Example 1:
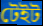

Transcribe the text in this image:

টেইট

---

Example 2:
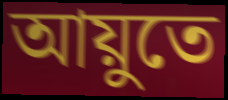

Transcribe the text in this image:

আয়ুতে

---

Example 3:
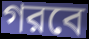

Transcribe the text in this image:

গরবে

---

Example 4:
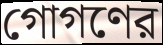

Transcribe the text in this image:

গোগণের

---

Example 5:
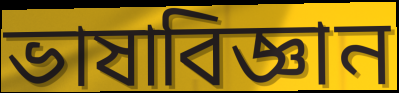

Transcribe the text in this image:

ভাষাবিজ্ঞান